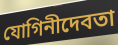
যোগিনীদেবতা